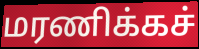
மரணிக்கச்